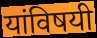
यांविषयी